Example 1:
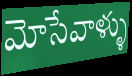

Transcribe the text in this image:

మోసేవాళ్ళు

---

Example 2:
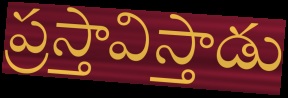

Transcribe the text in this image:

ప్రస్తావిస్తాడు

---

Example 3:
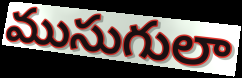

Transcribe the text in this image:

ముసుగులా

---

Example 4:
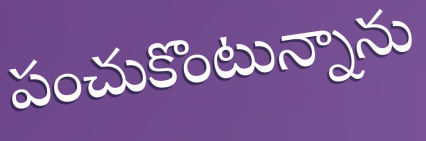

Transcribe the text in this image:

పంచుకొంటున్నాను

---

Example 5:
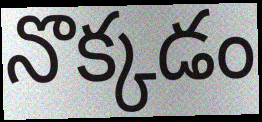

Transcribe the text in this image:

నొక్కడం